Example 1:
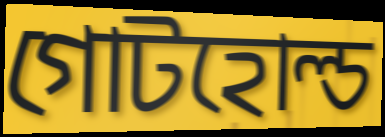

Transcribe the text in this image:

গোটহোল্ড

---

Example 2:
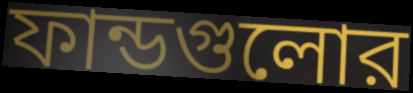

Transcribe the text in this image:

ফান্ডগুলোর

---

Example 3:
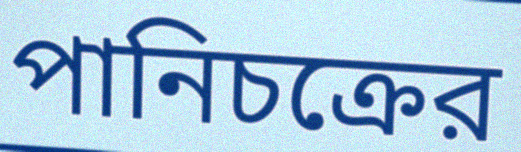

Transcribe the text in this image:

পানিচক্রের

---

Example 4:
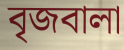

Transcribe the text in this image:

বৃজবালা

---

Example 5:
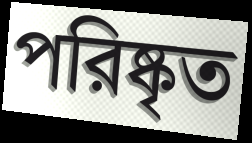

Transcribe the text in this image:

পরিষ্কৃত